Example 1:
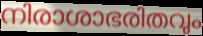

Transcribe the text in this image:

നിരാശാഭരിതവും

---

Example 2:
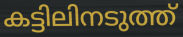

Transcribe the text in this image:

കട്ടിലിനടുത്ത്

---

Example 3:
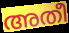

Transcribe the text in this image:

അതീ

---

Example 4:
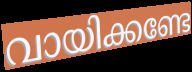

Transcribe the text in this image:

വായിക്കണ്ടേ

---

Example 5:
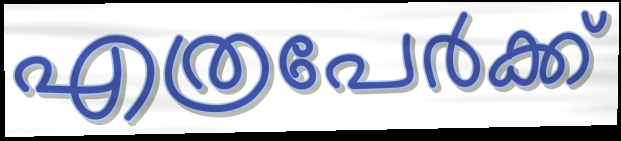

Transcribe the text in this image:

എത്രപേർക്ക്